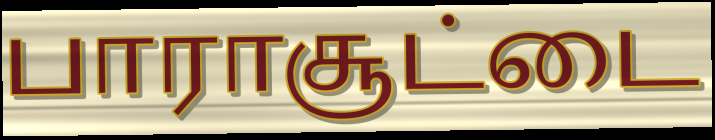
பாராசூட்டை